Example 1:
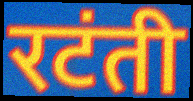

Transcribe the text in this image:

रटंती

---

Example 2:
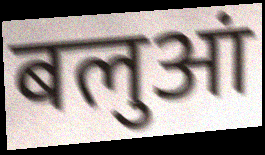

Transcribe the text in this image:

बलुआं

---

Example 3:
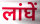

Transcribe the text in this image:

लांघें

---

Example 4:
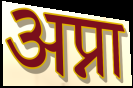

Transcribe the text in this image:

अप्ना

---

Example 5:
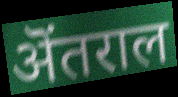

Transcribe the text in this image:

ऄंतराल